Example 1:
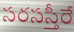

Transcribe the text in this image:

సరసస్తీరే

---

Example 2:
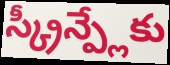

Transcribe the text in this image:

స్క్రీన్ప్లేకు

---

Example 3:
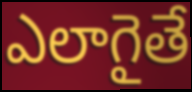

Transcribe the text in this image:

ఎలాగైతే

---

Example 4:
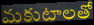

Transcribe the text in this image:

మకుటాలతో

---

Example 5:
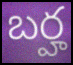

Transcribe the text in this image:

బర్హ